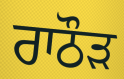
ਰਾਠੌੜ